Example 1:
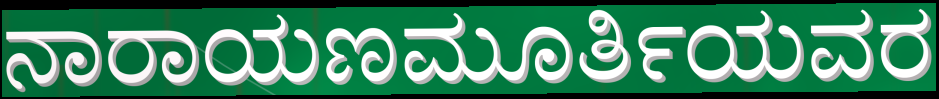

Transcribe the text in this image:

ನಾರಾಯಣಮೂರ್ತಿಯವರ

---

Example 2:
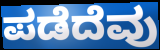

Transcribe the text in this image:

ಪಡೆದೆವು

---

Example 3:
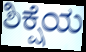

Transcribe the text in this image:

ಶಿಕ್ಷೆಯ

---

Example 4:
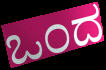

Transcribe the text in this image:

ಒಂದ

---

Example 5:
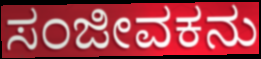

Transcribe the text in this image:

ಸಂಜೀವಕನು